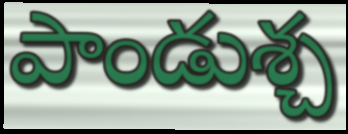
పాండుశ్చ